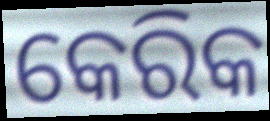
କେରିକ